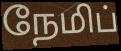
நேமிப்